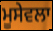
ਮੂਸੇਵਲਾ